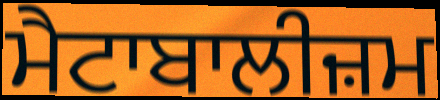
ਮੈਟਾਬਾਲੀਜ਼ਮ